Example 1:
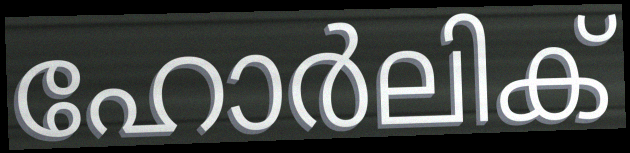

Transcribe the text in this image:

ഹോർലിക്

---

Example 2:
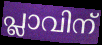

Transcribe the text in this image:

പ്ലാവിന്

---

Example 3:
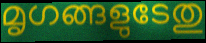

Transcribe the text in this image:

മൃഗങ്ങളുടേതു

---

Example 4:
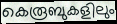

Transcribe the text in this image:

കെരൂബുകളിലും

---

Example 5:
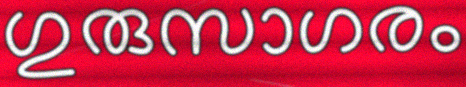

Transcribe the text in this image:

ഗുരുസാഗരം